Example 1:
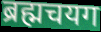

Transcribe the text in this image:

ब्रह्मचयग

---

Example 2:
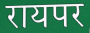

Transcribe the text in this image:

रायपर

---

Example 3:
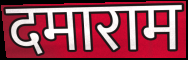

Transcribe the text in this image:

दमाराम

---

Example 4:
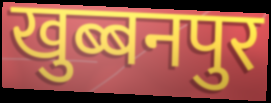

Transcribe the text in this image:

खुब्बनपुर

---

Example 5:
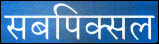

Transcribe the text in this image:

सबपिक्सल